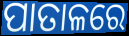
ପାତାଳରେ